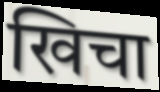
खिचा